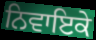
ਨਿਵਾਇਕੇ